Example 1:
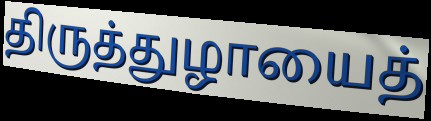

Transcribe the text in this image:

திருத்துழாயைத்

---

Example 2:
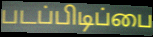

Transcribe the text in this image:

படப்பிடிப்பை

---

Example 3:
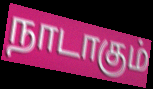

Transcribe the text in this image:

நாடாகும்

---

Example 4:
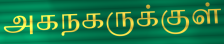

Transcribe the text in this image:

அகநகருக்குள்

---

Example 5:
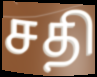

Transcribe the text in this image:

சதி